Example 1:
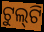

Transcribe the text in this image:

ଟୁଲ୍‌ଟି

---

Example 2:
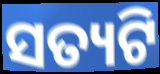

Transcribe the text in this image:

ସତ୍ୟଟି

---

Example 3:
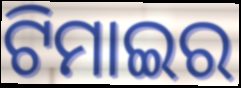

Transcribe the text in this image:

ଟିମାଇର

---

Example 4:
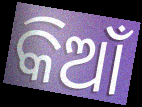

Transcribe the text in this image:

କିଆଁ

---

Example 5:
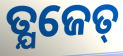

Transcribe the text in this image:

ତ୍ଯଜେତ୍